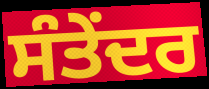
ਸੰਤੇਂਦਰ